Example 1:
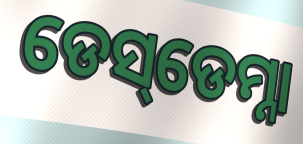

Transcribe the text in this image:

ଡେସ୍‌ଡେମ୍ନା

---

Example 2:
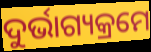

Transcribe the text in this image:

ଦୁର୍ଭାଗ୍ୟକ୍ରମେ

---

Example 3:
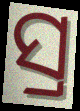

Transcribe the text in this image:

ସ୍ର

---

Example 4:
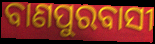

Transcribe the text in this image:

ବାଣପୁରବାସୀ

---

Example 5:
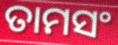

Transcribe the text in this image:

ତାମସଂ